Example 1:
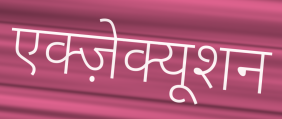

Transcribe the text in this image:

एक्ज़ेक्यूशन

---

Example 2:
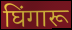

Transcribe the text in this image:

घिंगारू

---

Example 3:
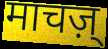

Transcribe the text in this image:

माचज़्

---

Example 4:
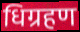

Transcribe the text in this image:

धिग्रहण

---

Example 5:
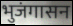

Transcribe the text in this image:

भुजंगासन